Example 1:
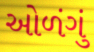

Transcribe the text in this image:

ઓળંગું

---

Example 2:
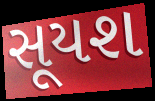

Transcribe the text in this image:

સૂયશ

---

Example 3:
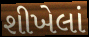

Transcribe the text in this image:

શીખેલાં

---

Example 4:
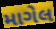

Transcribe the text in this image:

માગેલ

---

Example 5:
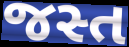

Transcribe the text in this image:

જસ્ત